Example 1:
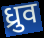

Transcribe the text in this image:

ध्रुव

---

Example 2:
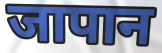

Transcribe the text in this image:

जापान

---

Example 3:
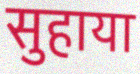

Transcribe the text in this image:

सुहाया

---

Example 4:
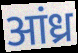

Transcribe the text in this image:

आंध्र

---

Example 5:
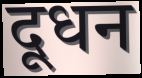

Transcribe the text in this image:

दूधन